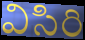
విసిరి